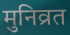
मुनिव्रत